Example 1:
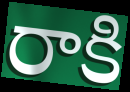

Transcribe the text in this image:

రాకి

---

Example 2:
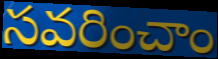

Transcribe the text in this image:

సవరించాం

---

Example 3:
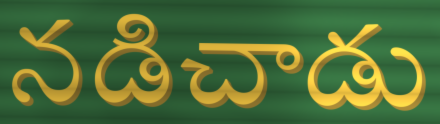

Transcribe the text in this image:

నడిచాడు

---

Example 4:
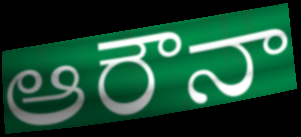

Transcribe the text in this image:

ఆరౌనా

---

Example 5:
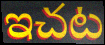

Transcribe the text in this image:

ఇచట